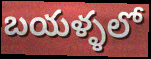
బయళ్ళలో